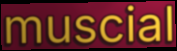
muscial